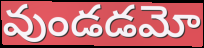
వుండడమో